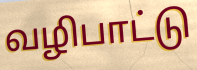
வழிபாட்டு